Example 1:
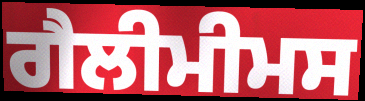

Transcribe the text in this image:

ਗੈਲੀਮੀਮਸ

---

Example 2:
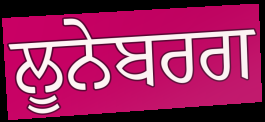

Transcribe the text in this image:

ਲੂਨੇਬਰਗ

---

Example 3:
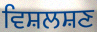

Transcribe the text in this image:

ਵਿਸ਼ਲਸ਼ਣ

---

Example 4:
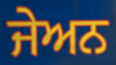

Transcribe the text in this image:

ਜੇਅਨ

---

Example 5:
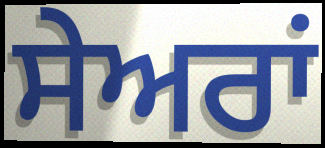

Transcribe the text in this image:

ਸੇਅਰਾਂ